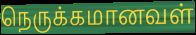
நெருக்கமானவள்